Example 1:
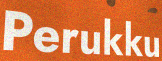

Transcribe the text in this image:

Perukku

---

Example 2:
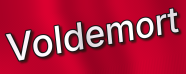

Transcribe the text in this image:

Voldemort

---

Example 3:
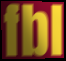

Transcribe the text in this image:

fbl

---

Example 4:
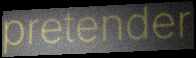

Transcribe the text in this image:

pretender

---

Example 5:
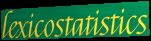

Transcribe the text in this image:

lexicostatistics